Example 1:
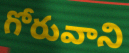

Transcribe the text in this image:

గోరువాని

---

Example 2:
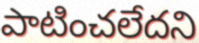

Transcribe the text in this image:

పాటించలేదని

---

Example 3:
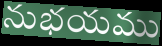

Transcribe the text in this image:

నుభయము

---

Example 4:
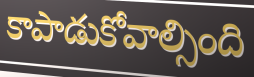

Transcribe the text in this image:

కాపాడుకోవాల్సింది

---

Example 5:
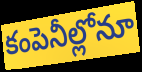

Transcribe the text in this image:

కంపెనీల్లోనూ